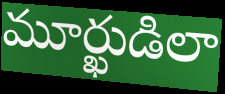
మూర్ఖుడిలా